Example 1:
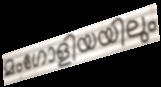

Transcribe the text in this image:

മംഗോളിയയിലും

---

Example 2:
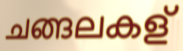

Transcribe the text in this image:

ചങ്ങലകള്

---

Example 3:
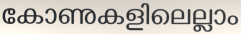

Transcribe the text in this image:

കോണുകളിലെല്ലാം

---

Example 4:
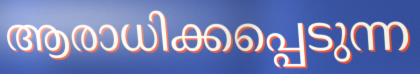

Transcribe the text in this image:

ആരാധിക്കപ്പെടുന്ന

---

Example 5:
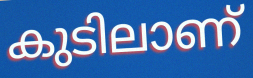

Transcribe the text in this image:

കുടിലാണ്